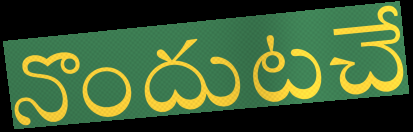
నొందుటచే